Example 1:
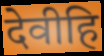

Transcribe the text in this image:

देवीहि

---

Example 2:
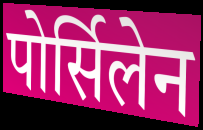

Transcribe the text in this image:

पोर्सिलेन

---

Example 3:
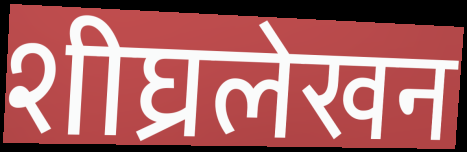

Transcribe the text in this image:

शीघ्रलेखन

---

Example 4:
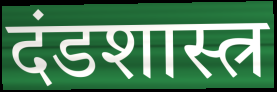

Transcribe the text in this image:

दंडशास्त्र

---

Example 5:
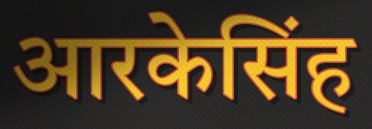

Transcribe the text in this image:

आरकेसिंह